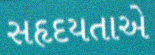
સહૃદયતાએ